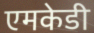
एमकेडी